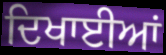
ਦਿਖਾਈਆਂ